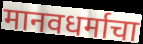
मानवधर्माचा